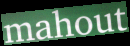
mahout